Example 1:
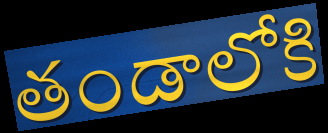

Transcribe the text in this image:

తండాలోకి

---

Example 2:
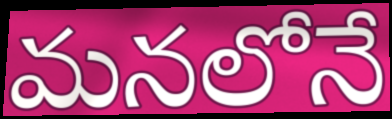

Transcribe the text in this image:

మనలోనే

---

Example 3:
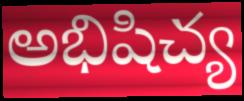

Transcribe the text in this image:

అభిషిచ్య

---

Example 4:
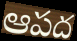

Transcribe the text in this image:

ఆపద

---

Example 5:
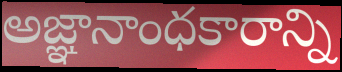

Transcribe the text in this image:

అజ్ఞానాంధకారాన్ని